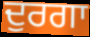
ਦੁਰਗਾ